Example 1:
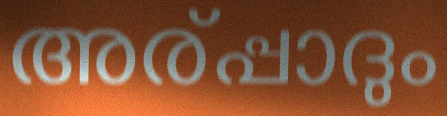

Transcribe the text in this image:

അര്പ്പാദും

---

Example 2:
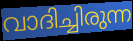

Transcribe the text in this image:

വാദിച്ചിരുന്ന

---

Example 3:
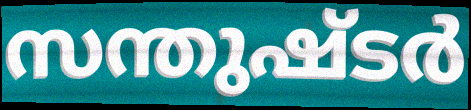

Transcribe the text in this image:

സന്തുഷ്ടർ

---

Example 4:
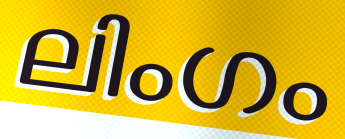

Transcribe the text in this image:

ലിംഗം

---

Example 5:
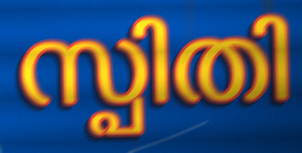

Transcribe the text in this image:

സ്പിതി